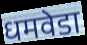
धमवेडा